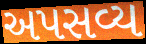
અપસવ્ય